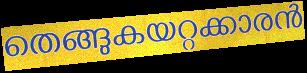
തെങ്ങുകയറ്റക്കാരൻ